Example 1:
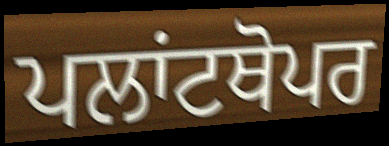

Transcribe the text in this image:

ਪਲਾਂਟਥੋਪਰ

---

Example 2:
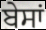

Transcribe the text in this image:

ਬੇਸਾਂ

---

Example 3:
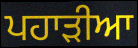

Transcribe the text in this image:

ਪਹਾੜੀਆ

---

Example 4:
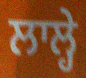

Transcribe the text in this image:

ਲਾਲ੍ਹੇ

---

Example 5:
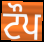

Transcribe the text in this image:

ਟੌਪ